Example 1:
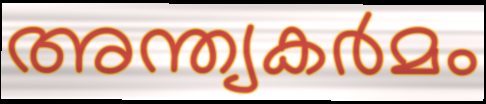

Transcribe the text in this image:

അന്ത്യകർമം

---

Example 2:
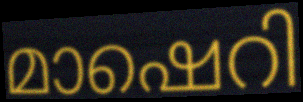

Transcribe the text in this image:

മാഷെറി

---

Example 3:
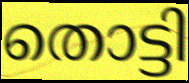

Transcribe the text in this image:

തൊട്ടി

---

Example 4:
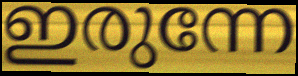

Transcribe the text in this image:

ഇരുന്നേ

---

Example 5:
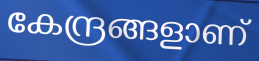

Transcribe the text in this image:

കേന്ദ്രങ്ങളാണ്